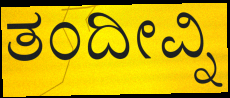
ತಂದೀವ್ನಿ